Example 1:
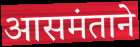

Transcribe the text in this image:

आसमंताने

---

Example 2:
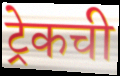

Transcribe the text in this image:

ट्रेकची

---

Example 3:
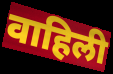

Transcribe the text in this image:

वाहिली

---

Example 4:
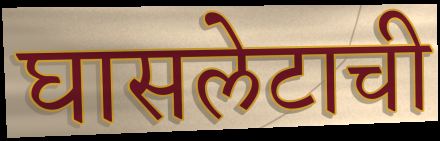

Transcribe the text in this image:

घासलेटाची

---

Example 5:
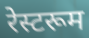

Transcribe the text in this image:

रेस्टरूम